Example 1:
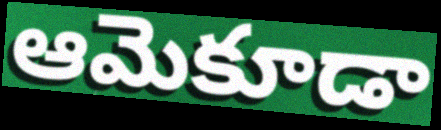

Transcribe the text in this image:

ఆమెకూడా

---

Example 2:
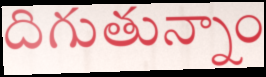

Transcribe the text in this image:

దిగుతున్నాం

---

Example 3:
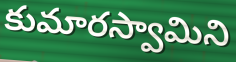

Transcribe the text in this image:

కుమారస్వామిని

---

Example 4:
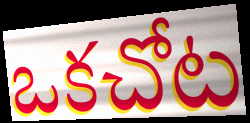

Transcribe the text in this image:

ఒకచోట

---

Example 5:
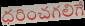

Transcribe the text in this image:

ధరించగలిగే